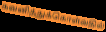
கவனித்துக்கொள்வதில்